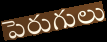
పెరుగులు